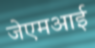
जेएमआई